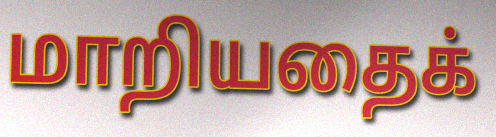
மாறியதைக்